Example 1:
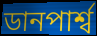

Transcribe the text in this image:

ডানপার্শ্ব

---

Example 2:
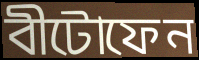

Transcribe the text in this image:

বীটোফেন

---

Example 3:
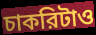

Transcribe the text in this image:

চাকরিটাও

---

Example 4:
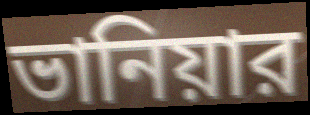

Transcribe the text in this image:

ভানিয়ার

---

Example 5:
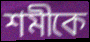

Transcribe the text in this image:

শমীকে